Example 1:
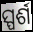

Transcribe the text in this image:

ସ୍ପର୍ଶ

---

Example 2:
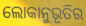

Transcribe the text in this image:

ଲୋକାନୁଭୂତିର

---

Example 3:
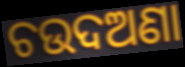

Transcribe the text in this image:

ଚଉଦଅଣା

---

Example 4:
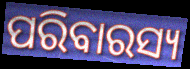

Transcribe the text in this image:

ପରିବାରସ୍ୟ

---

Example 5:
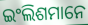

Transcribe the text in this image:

ଇଂଲିଶମାନେ